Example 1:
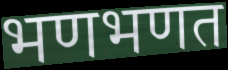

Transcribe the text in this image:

भणभणत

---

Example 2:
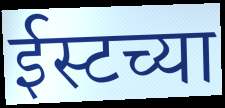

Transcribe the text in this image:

ईस्टच्या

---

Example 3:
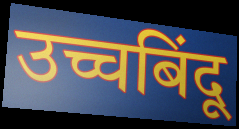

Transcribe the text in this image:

उच्चबिंदू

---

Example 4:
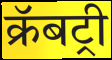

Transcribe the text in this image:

क्रॅबट्री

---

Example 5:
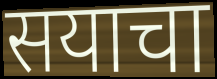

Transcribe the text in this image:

सयाचा